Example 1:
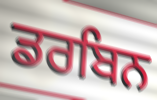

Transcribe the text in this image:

ਡਰਬਿਨ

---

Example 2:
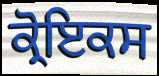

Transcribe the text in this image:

ਕ੍ਰੋਇਕਸ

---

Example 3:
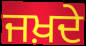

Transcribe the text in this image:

ਜਖ਼ਦੇ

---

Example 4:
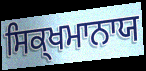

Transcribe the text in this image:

ਸਿਕ੍ਖਮਾਨਾਯ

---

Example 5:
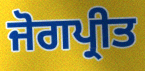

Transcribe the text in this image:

ਜੋਗਪ੍ਰੀਤ